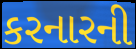
કરનારની